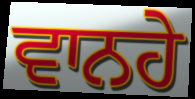
ਵਾਨਹੇ